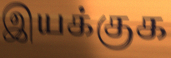
இயக்குக